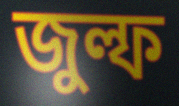
জুল্ফ